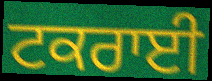
ਟਕਰਾਈ